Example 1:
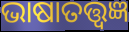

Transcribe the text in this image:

ଭାଷାତତ୍ତ୍ୱଜ୍ଞ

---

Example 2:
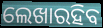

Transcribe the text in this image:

ଲେଖାରହିବ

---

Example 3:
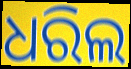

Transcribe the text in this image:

ଧରିଲ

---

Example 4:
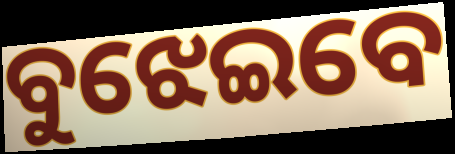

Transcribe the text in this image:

ବୁଝେଇବେ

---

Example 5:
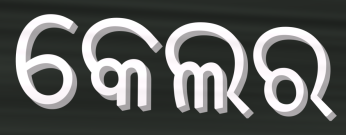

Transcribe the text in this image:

କେଲର